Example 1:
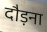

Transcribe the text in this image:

दौड़ना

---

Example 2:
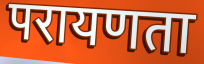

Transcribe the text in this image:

परायणता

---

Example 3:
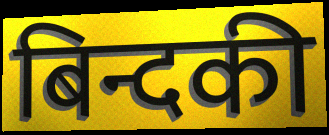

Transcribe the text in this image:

बिन्दकी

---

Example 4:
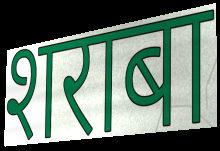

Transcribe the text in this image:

शराबा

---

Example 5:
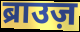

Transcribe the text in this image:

ब्राउज़